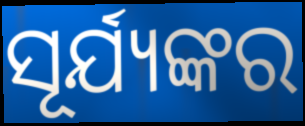
ସୂର୍ଯ୍ୟଙ୍କର